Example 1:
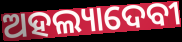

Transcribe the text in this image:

ଅହଲ୍ୟାଦେବୀ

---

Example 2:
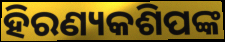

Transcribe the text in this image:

ହିରଣ୍ୟକଶିପଙ୍କ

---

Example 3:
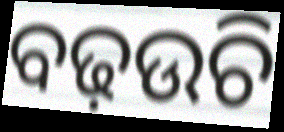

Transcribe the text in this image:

ବଢ଼ଉଚି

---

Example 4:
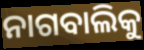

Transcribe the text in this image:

ନାଗବାଲିକୁ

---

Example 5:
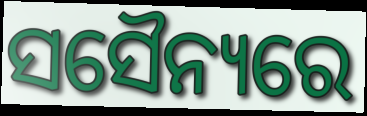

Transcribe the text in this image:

ସସୈନ୍ୟରେ